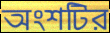
অংশটির